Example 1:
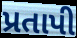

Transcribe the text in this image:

પ્રતાપી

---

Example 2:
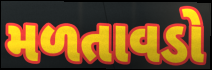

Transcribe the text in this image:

મળતાવડો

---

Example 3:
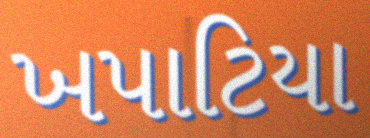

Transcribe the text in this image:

ખપાટિયા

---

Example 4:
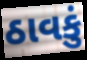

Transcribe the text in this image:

ઠાવકું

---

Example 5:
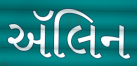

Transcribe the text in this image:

ઍલિન